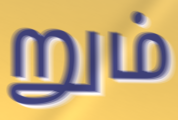
றும்